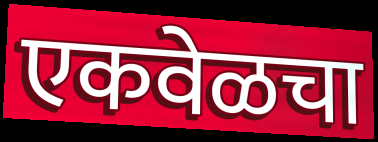
एकवेळचा